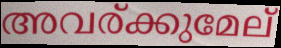
അവര്ക്കുമേല്